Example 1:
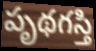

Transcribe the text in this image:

పృథగస్తి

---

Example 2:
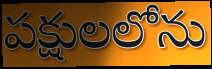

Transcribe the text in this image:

పక్షులలోను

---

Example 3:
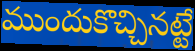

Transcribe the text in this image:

ముందుకొచ్చినట్టే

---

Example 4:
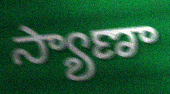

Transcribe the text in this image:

స్యాణా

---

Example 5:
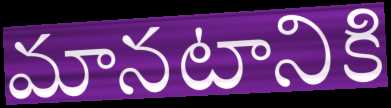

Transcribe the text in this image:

మానటానికి